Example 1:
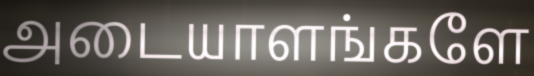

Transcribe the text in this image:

அடையாளங்களே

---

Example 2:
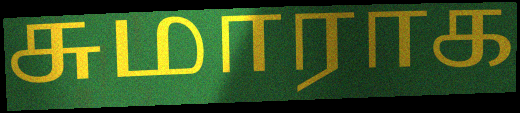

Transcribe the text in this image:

சுமாராக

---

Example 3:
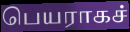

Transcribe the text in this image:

பெயராகச்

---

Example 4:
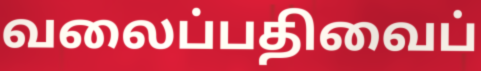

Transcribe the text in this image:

வலைப்பதிவைப்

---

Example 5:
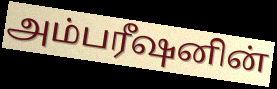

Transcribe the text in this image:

அம்பரீஷனின்